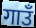
गाउँ